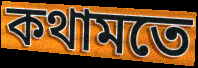
কথামতে